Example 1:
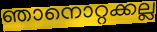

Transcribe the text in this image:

ഞാനൊറ്റക്കല്ല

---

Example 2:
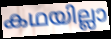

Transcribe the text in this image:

കഥയില്ലാ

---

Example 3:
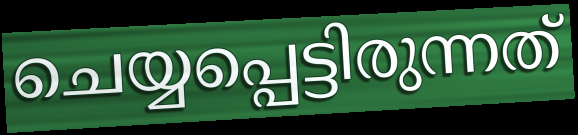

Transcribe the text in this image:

ചെയ്യപ്പെട്ടിരുന്നത്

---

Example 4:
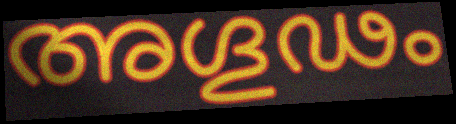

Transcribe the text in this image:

അഗൂഢം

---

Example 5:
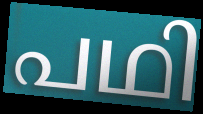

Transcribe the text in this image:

പഥി